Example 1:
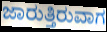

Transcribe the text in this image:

ಜಾರುತ್ತಿರುವಾಗ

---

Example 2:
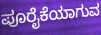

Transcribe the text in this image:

ಪೂರೈಕೆಯಾಗುವ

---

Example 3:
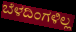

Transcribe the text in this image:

ಬೆಳದಿಂಗಳಿಲ್ಲ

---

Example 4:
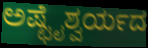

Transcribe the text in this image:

ಅಷ್ಟೈಶ್ವರ್ಯದ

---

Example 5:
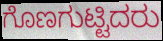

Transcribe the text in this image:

ಗೊಣಗುಟ್ಟಿದರು